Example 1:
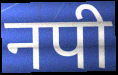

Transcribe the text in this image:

नपी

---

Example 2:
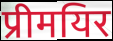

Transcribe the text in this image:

प्रीमयिर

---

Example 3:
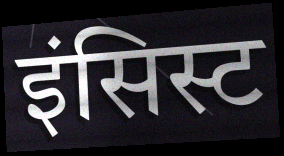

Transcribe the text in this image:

इंसिस्ट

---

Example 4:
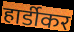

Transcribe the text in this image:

हार्डीकर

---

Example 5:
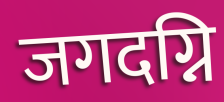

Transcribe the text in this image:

जगदग्नि